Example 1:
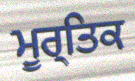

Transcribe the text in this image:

ਮੂਰ੍ਤਿਕ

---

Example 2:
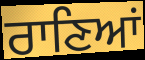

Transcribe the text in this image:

ਰਾਣਿਆਂ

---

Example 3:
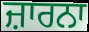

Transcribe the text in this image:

ਜ਼ਾਰਨਾ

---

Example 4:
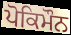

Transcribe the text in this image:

ਪੋਕਿਮੌਨ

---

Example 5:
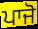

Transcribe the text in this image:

ਪਾਜੋ